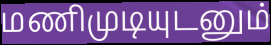
மணிமுடியுடனும்